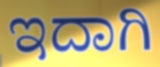
ಇದಾಗಿ